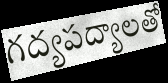
గద్యపద్యాలతో